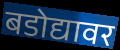
बडोद्यावर